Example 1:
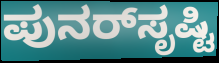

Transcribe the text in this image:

ಪುನರ್‌ಸೃಷ್ಟಿ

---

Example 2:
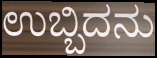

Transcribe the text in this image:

ಉಬ್ಬಿದನು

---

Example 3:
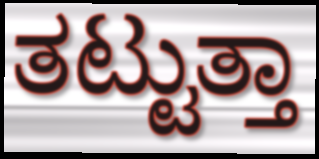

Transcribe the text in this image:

ತಟ್ಟುತ್ತಾ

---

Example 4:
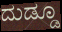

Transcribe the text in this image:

ದುಡ್ಡೂ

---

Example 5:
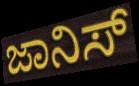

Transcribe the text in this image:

ಜಾನಿಸ್